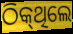
ଠିକ୍‌ଥିଲେ